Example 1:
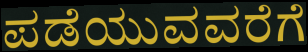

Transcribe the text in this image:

ಪಡೆಯುವವರೆಗೆ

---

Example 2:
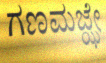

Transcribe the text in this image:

ಗಣಮಜ್ಝೇ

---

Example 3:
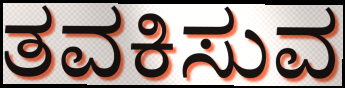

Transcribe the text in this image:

ತವಕಿಸುವ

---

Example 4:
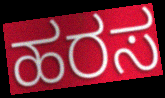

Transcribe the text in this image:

ಹರಸ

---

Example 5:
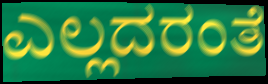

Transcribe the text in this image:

ಎಲ್ಲದರಂತೆ